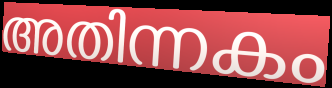
അതിന്നകം